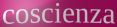
coscienza